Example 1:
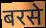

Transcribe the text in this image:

बरसे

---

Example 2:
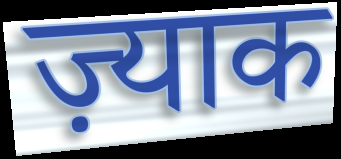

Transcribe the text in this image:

ज़्याक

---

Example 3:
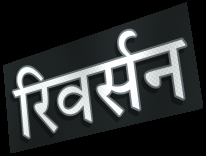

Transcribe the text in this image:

रिवर्सन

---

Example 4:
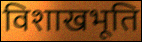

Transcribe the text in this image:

विशाखभूति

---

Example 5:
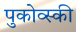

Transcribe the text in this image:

पुकोव्स्की